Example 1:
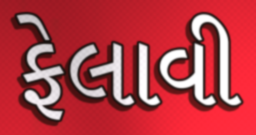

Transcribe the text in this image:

ફેલાવી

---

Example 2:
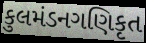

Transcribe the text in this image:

કુલમંડનગણિકૃત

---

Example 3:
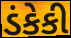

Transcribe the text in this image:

ડંકેકી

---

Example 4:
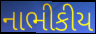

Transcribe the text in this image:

નાભીકીય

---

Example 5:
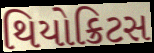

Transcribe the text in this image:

થિયોક્રિટસ